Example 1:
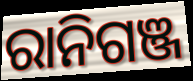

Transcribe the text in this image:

ରାନିଗଞ୍ଜ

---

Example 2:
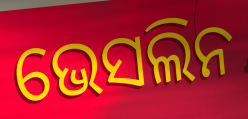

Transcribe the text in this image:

ଭେସଲିନ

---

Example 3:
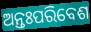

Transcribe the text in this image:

ଅନ୍ତଃପରିବେଶ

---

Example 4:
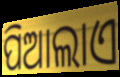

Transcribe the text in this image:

ପିଆଲାଏ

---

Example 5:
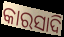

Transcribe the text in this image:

କାରସାଦି